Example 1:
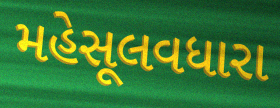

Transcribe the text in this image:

મહેસૂલવધારા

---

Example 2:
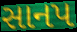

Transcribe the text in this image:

સાનપ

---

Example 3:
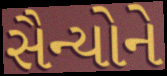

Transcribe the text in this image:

સૈન્યોને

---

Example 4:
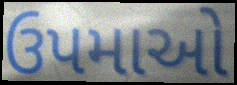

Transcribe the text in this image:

ઉપમાઓ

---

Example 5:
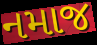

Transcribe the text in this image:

નમાજ